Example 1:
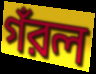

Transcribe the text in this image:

গঁরল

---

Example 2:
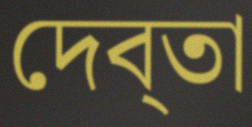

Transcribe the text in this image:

দেব্তা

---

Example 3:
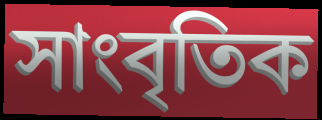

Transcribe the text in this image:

সাংবৃতিক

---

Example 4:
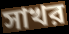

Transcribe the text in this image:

সাখর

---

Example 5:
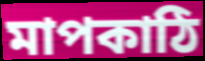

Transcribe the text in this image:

মাপকাঠি